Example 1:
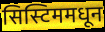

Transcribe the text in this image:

सिस्टिममधून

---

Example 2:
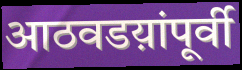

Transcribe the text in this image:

आठवडय़ांपूर्वी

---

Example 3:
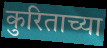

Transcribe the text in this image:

कुरिताच्या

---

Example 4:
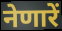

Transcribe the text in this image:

नेणारें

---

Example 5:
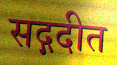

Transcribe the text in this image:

सद्गदीत